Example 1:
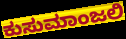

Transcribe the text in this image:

ಕುಸುಮಾಂಜಲಿ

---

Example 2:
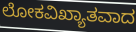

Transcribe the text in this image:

ಲೋಕವಿಖ್ಯಾತವಾದ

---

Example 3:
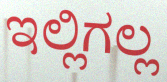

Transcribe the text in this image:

ಇಲ್ಲಿಗಲ್ಲ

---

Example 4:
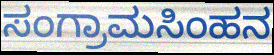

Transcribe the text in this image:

ಸಂಗ್ರಾಮಸಿಂಹನ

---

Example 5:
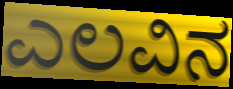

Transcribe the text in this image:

ಎಲವಿನ